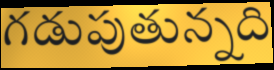
గడుపుతున్నది